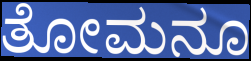
ತೋಮನೂ